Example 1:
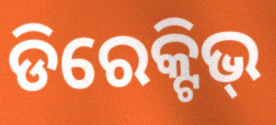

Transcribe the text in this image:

ଡିରେକ୍ଟିଭ୍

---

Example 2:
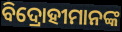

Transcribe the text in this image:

ବିଦ୍ରୋହୀମାନଙ୍କ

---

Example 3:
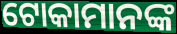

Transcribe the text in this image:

ଟୋକାମାନଙ୍କ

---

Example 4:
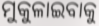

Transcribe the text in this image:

ମୁକୁଳାଇବାକୁ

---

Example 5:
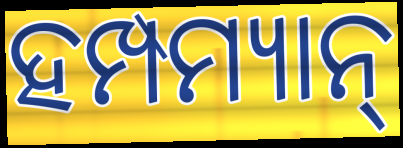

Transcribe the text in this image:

ହମ୍ପମ୍ୟାନ୍